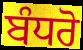
ਬੰਧਰੋ